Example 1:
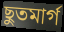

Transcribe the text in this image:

ছুতমার্গ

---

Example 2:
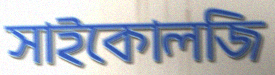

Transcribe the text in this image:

সাইকোলজি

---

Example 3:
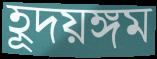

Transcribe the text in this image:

হূদয়ঙ্গম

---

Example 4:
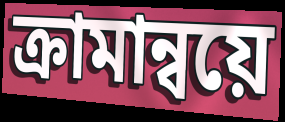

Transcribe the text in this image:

ক্রামান্বয়ে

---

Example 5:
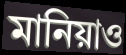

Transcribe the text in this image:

মানিয়াও